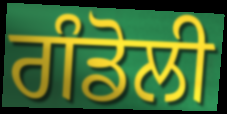
ਗੰਡੋਲੀ